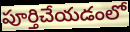
పూర్తిచేయడంలో